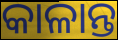
କାଳାନ୍ତ